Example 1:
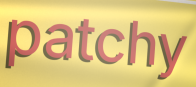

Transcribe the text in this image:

patchy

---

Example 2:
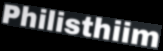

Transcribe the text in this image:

Philisthiim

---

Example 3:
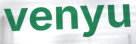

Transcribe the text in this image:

venyu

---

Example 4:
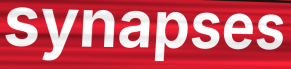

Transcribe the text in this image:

synapses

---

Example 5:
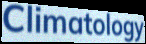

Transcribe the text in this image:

Climatology